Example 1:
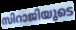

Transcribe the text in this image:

സിറാജിയുടെ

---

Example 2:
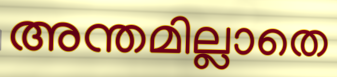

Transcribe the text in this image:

അന്തമില്ലാതെ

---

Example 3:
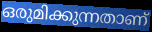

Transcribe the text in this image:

ഒരുമിക്കുന്നതാണ്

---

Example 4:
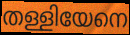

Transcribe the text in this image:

തള്ളിയേനെ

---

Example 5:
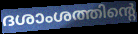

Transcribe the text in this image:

ദശാംശത്തിന്റെ